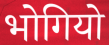
भोगियो